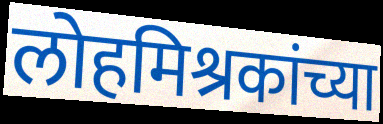
लोहमिश्रकांच्या